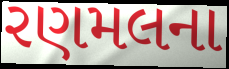
રણમલના